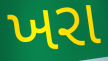
ખરા